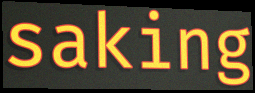
saking